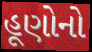
હૂણોનો